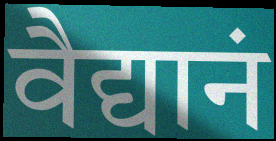
वैद्यानं